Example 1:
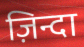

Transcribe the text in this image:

ज़िन्दा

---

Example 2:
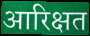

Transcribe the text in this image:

आरिक्षत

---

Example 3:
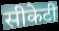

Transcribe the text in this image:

सीकेटी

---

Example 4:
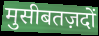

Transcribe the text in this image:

मुसीबतज़दों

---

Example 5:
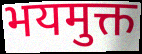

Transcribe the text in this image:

भयमुक्त